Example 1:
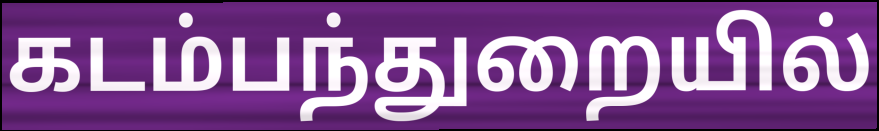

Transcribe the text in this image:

கடம்பந்துறையில்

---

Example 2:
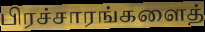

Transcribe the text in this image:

பிரச்சாரங்களைத்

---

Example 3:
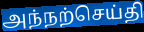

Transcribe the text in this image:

அந்நற்செய்தி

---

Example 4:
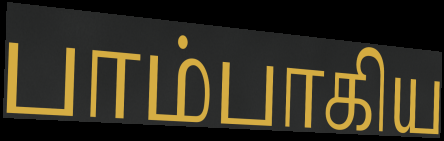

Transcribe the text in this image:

பாம்பாகிய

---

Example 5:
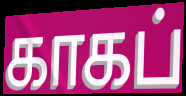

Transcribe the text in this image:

காகப்